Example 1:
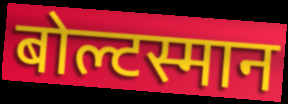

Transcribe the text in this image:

बोल्टस्मान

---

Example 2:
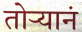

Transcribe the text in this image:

तोऱ्यानं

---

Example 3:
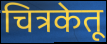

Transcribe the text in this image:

चित्रकेतू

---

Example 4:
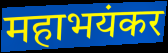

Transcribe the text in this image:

महाभयंकर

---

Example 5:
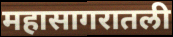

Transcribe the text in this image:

महासागरातली